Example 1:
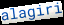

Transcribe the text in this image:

alagiri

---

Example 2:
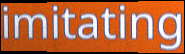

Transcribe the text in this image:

imitating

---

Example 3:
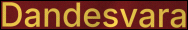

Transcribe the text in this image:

Dandesvara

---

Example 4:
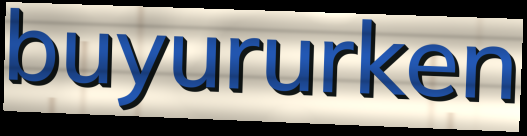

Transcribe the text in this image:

buyururken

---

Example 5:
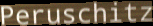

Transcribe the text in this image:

Peruschitz